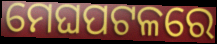
ମେଘପଟଳରେ